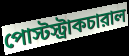
পোস্টস্ট্রাকচারাল